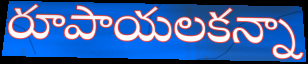
రూపాయలకన్నా